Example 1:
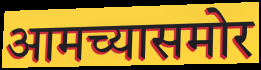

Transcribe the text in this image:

आमच्यासमोर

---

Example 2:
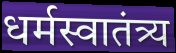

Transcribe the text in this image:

धर्मस्वातंत्र्य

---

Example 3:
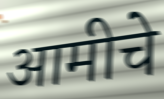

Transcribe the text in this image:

आमीचे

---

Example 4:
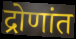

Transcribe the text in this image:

द्रोणांत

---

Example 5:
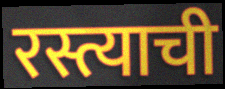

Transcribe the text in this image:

रस्त्याची